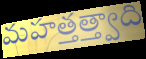
మహత్తత్త్వాది